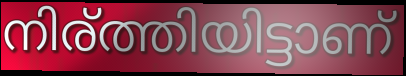
നിര്ത്തിയിട്ടാണ്